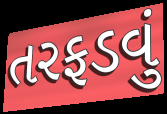
તરફડવું